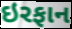
ઇરફાન